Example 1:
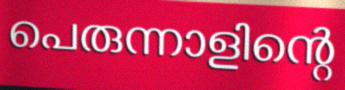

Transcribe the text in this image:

പെരുന്നാളിന്റെ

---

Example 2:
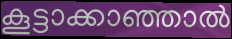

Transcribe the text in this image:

കൂട്ടാക്കാഞ്ഞാൽ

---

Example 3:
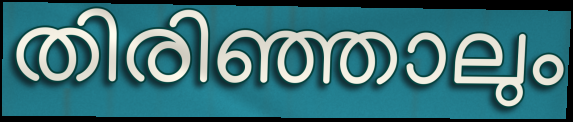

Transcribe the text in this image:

തിരിഞ്ഞാലും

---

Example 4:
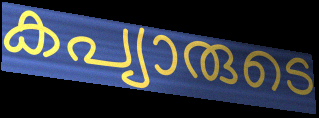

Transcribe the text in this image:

കപ്യാരുടെ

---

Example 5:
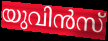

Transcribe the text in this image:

യുവിൻസ്